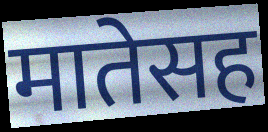
मातेसह